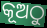
କୂଅଠୁ